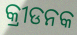
କ୍ରୀଡନକ